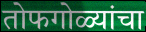
तोफगोळ्यांचा